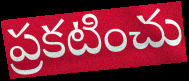
ప్రకటించు